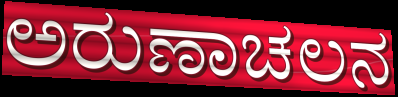
ಅರುಣಾಚಲನ